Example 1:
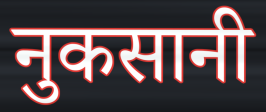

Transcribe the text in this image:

नुकसानी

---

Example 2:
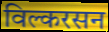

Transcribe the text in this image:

विल्करसन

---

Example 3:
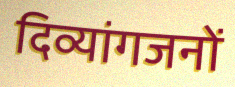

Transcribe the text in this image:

दिव्यांगजनों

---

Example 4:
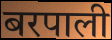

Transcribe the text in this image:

बरपाली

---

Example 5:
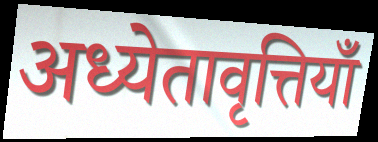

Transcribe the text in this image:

अध्येतावृत्तियाँ